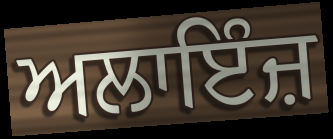
ਅਲਾਇੰਜ਼